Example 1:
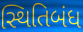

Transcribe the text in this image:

સ્થિતિબંધ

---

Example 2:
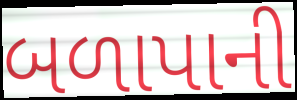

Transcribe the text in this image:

બળાપાની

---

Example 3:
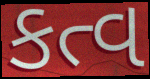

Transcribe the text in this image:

કત્વ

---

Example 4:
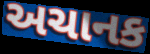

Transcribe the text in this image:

અચાનક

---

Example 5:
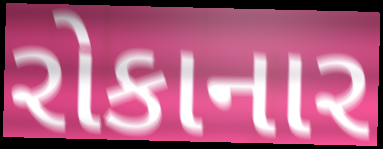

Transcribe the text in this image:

રોકાનાર